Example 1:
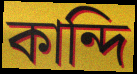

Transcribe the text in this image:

কান্দি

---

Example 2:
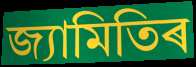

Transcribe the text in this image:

জ্যামিতিৰ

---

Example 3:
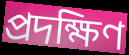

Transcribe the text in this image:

প্ৰদক্ষিণ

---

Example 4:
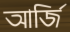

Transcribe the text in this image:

আৰ্জি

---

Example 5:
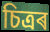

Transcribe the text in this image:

চিত্ৰৰ